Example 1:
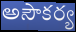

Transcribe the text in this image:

అసౌకర్య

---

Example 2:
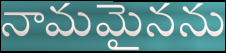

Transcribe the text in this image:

నామమైనను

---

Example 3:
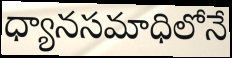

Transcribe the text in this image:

ధ్యానసమాధిలోనే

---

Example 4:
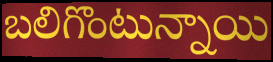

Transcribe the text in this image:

బలిగొంటున్నాయి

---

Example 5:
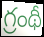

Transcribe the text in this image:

గ్రంథీ